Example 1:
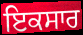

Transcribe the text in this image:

ਇਕਸਾਰ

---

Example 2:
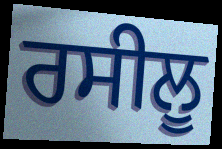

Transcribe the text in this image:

ਰਸੀਲੂ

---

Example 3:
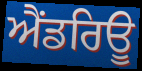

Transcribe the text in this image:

ਐਂਡਰਿਊ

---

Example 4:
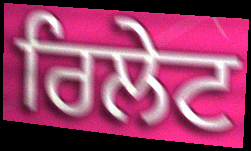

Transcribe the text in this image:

ਰਿਲੇਟ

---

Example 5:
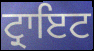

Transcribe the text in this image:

ਟ੍ਰਾਇਟ